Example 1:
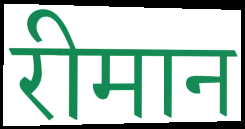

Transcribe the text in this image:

रीमान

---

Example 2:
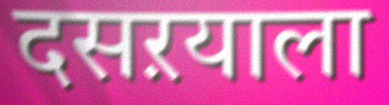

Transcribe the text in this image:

दसऱयाला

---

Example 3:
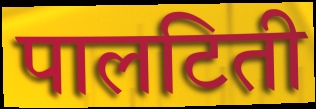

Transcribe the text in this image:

पालटिती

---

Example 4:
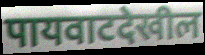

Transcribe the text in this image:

पायवाटदेखील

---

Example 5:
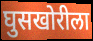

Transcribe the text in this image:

घुसखोरीला